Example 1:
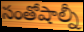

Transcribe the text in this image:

సంతోషాల్నీ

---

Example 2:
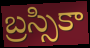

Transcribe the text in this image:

బ్రస్సికా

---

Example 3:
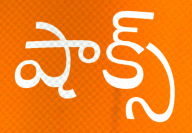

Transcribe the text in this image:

షాక్స్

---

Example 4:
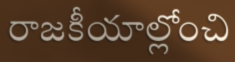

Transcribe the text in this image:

రాజకీయాల్లోంచి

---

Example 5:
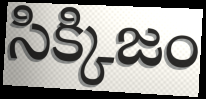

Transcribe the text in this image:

సిక్కిజం